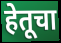
हेतूचा